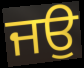
ਜਉ